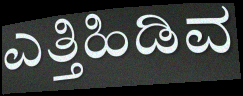
ಎತ್ತಿಹಿಡಿವ